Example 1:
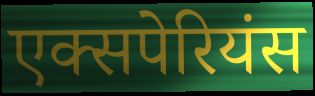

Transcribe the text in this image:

एक्सपेरियंस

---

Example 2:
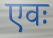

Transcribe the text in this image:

एवः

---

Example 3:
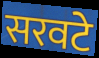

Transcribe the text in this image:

सरवटे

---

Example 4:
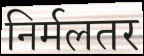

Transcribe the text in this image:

निर्मलतर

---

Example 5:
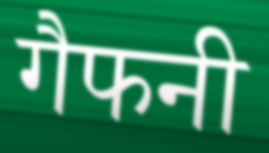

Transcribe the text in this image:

गैफनी